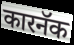
कारनॅक